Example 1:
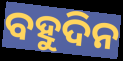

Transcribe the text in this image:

ବହୁଦିନ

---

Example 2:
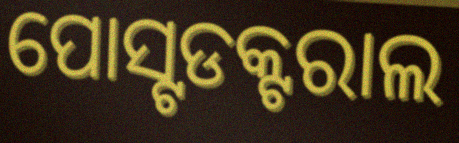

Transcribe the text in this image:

ପୋସ୍ଟଡକ୍ଟରାଲ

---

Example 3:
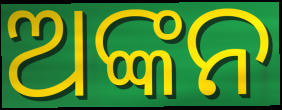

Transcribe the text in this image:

ଅଙ୍କନ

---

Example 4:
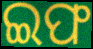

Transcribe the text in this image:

ଇଫ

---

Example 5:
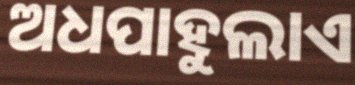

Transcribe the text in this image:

ଅଧପାହୁଲାଏ